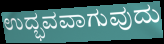
ಉದ್ಭವವಾಗುವುದು